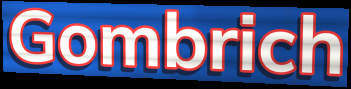
Gombrich